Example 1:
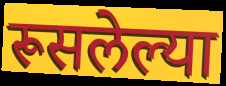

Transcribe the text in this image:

रूसलेल्या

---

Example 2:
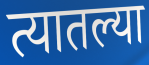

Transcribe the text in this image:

त्यातल्या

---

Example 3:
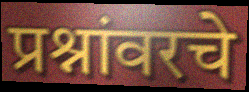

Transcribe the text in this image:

प्रश्नांवरचे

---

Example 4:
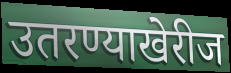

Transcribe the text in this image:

उतरण्याखेरीज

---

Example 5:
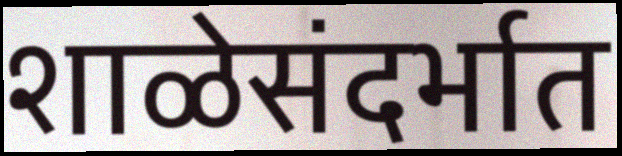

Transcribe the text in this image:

शाळेसंदर्भात